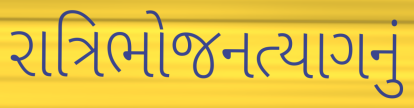
રાત્રિભોજનત્યાગનું